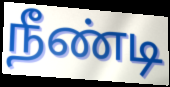
நீண்டி